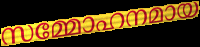
സമ്മോഹനമായ